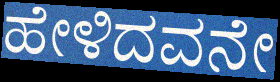
ಹೇಳಿದವನೇ